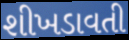
શીખડાવતી